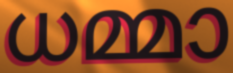
ധമ്മാ